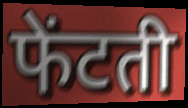
फेंटती